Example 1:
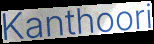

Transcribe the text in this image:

Kanthoori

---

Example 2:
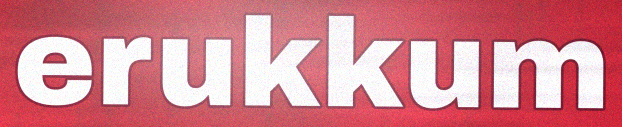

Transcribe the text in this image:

erukkum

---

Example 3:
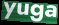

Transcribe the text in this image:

yuga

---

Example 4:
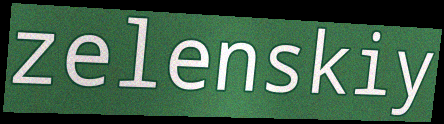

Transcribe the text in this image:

zelenskiy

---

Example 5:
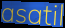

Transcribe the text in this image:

asatil